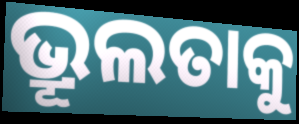
ଭ୍ରୂଲତାକୁ